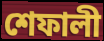
শেফালী